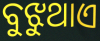
ବୁଝୁଥାଏ